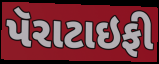
પૅરાટાઇફી